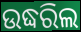
ଉଦ୍ଧରିଲ